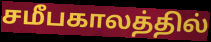
சமீபகாலத்தில்